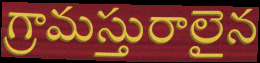
గ్రామస్తురాలైన